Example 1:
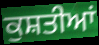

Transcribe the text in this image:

ਕੁਸ਼ਤੀਆਂ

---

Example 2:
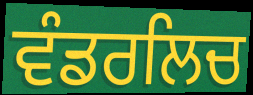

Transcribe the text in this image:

ਵੰਡਰਲਿਚ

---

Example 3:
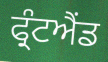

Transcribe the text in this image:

ਫ੍ਰੰਟਐਂਡ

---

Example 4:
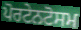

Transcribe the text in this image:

ਪੋਰਟੇਨਟੋਸਮ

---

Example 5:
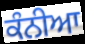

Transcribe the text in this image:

ਕੰਨੀਆ